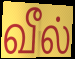
வீல்